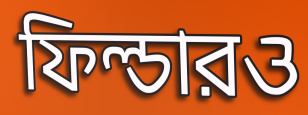
ফিল্ডারও